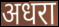
अधरा